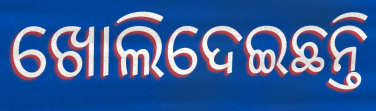
ଖୋଲିଦେଇଛନ୍ତି